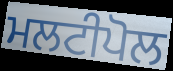
ਮਲਟੀਪੋਲ